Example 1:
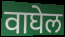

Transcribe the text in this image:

वाघेल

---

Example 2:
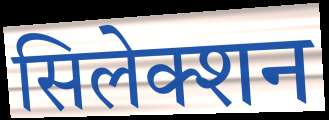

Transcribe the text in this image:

सिलेक्शन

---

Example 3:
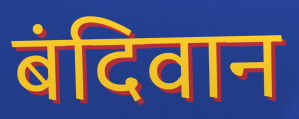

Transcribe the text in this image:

बंदिवान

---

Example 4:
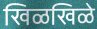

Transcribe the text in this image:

खिळखिळे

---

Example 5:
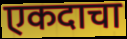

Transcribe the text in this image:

एकदाचा